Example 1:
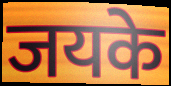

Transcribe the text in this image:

जयके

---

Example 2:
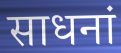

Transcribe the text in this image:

साधनां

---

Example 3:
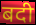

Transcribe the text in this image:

बदी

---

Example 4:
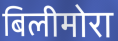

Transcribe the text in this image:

बिलीमोरा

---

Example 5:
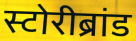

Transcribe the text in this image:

स्टोरीब्रांड